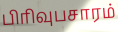
பிரிவுபசாரம்